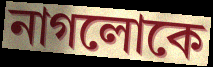
নাগলোকে